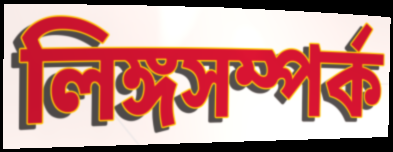
লিঙ্গসম্পর্ক